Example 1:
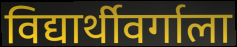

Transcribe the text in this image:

विद्यार्थीवर्गाला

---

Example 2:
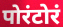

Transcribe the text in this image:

पोरंटोरं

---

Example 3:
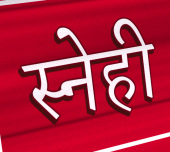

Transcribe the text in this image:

स्नेही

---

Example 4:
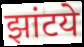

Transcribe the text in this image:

झांटये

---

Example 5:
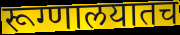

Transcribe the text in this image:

रूग्णालयातच